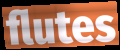
flutes